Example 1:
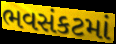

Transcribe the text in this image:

ભવસંકટમાં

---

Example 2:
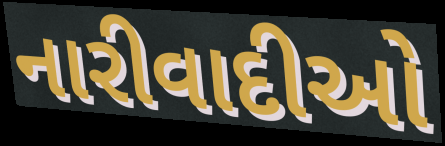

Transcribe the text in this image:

નારીવાદીઓ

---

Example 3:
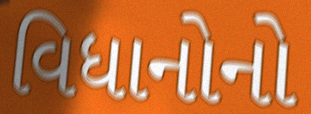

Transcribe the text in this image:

વિધાનોનો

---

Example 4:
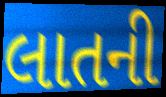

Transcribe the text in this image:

લાતની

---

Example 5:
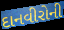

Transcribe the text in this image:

દાનવીરોની